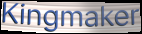
Kingmaker